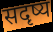
सदृष्य